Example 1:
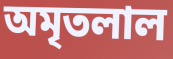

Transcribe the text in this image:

অমৃতলাল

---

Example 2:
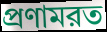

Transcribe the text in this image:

প্রণামরত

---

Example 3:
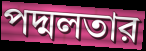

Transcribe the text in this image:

পদ্মলতার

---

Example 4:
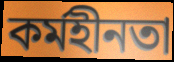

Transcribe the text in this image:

কর্মহীনতা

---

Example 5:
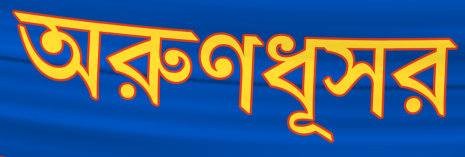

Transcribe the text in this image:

অরুণধূসর